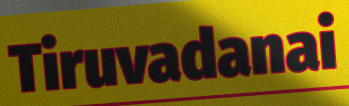
Tiruvadanai